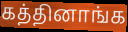
கத்தினாங்க